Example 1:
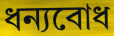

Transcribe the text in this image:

ধন্যবোধ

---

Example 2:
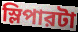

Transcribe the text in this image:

স্লিপারটা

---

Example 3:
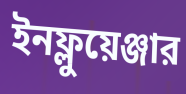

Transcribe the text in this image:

ইনফ্লুয়েঞ্জার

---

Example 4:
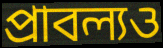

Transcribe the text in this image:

প্রাবল্যও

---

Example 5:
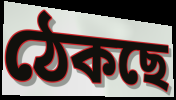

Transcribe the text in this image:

ঠেকছে